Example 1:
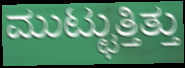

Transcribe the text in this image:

ಮುಟ್ಟುತ್ತಿತ್ತು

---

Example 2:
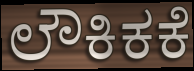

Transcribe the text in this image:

ಲೌಕಿಕಕೆ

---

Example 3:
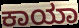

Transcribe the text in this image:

ಕಾಯಾ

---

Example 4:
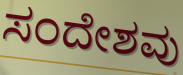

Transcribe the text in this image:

ಸಂದೇಶವು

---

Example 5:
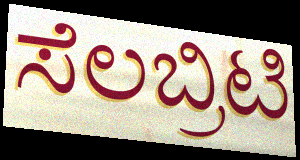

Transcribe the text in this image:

ಸೆಲಬ್ರಿಟಿ